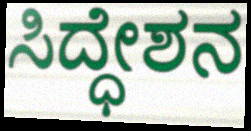
ಸಿದ್ಧೇಶನ